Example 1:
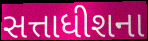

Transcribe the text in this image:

સત્તાધીશના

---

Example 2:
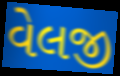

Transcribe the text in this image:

વેલજી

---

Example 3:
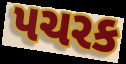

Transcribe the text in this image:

પચરક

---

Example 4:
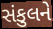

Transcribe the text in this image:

સંકુલને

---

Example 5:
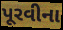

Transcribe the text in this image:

પૂરવીના